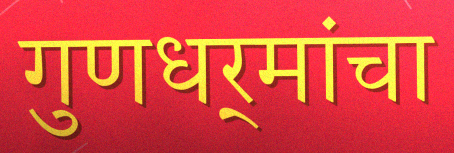
गुणधर्मांचा